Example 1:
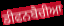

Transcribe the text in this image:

ਡੀਫਨਬੈਚੀਆ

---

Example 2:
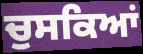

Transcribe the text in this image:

ਚੁਸਕਿਆਂ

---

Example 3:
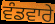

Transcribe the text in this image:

ਵੰਡਵਾਰੇ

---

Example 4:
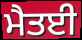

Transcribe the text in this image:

ਮੈਤਈ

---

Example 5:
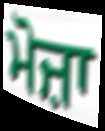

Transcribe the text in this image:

ਮੋਜ਼ਾ